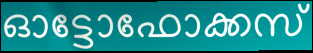
ഓട്ടോഫോക്കസ്